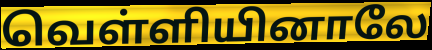
வெள்ளியினாலே